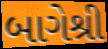
બાગેશ્રી